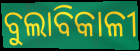
ବୁଲାବିକାଳୀ